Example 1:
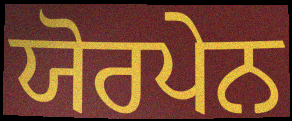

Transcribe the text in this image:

ਯੋਰਪੇਨ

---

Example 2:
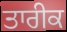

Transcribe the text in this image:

ਤਾਰੀਕ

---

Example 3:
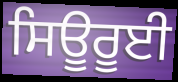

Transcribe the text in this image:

ਸਿਊਰੂਈ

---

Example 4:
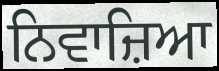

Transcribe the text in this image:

ਨਿਵਾਜ਼ਿਆ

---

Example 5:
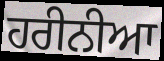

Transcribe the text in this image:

ਹਰੀਨੀਆ